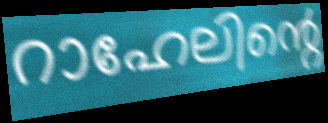
റാഹേലിന്റെ